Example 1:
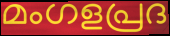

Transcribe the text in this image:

മംഗളപ്രദ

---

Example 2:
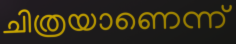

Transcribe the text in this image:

ചിത്രയാണെന്ന്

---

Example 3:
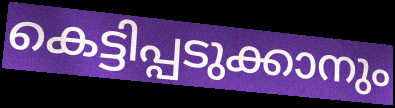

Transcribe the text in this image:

കെട്ടിപ്പടുക്കാനും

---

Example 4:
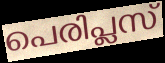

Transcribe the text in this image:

പെരിപ്ലസ്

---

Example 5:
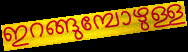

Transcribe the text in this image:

ഇറങ്ങുമ്പോഴുള്ള